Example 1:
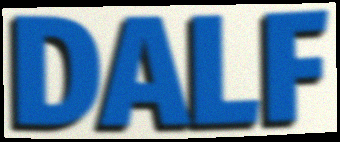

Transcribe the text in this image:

DALF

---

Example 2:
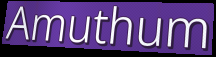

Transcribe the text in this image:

Amuthum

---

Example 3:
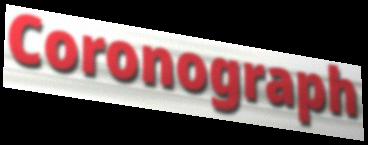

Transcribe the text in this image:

Coronograph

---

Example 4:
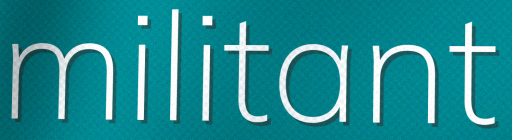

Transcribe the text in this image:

militant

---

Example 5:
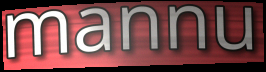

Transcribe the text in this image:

mannu